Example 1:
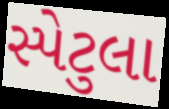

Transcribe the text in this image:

સ્પેટુલા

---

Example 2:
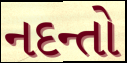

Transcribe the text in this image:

નદન્તો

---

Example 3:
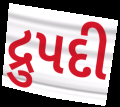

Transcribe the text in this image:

દ્રુપદી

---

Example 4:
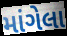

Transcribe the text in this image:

માંગેલા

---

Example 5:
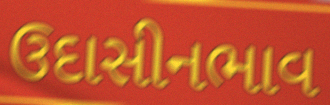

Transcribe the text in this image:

ઉદાસીનભાવ